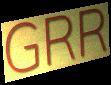
GRR